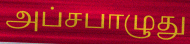
அப்சபாழுது